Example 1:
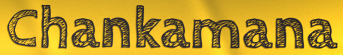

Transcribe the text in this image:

Chankamana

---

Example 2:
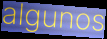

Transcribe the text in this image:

algunos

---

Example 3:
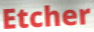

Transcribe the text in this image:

Etcher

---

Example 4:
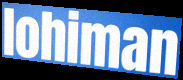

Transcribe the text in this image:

lohiman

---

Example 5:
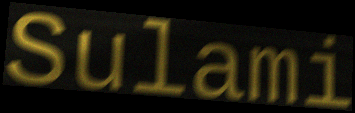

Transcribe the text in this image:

Sulami